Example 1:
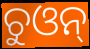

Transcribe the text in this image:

ଚୁଓନ୍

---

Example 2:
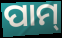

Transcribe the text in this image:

ପାମ୍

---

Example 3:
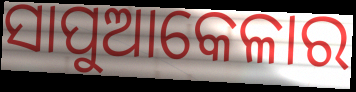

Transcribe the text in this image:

ସାପୁଆକେଳାର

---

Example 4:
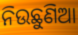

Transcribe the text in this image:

ନିଉଛୁଣିଆ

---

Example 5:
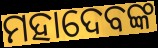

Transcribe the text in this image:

ମହାଦେବଙ୍କ